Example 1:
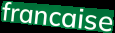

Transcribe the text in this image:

francaise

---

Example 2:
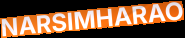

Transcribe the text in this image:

NARSIMHARAO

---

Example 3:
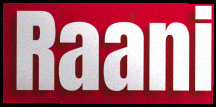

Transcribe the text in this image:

Raani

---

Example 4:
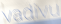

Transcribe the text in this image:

vadivu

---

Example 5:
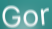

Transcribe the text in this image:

Gor